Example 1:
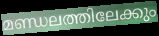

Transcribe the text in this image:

മണ്ഡലത്തിലേക്കും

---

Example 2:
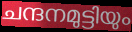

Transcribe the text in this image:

ചന്ദനമുട്ടിയും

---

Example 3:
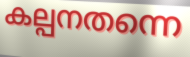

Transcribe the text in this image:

കല്പനതന്നെ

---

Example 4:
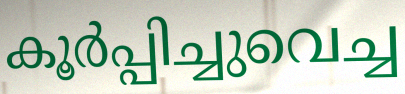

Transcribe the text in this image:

കൂർപ്പിച്ചുവെച്ച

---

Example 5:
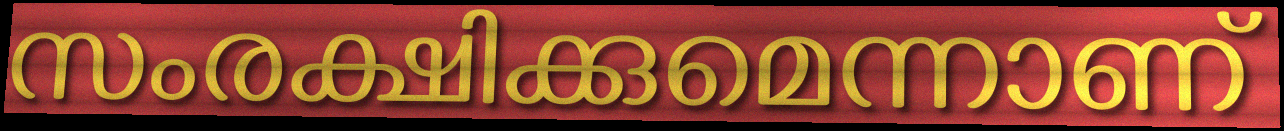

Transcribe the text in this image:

സംരക്ഷിക്കുമെന്നാണ്